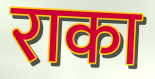
राका